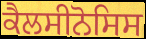
ਕੈਲਸੀਨੋਸਿਸ